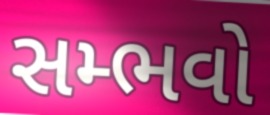
સમ્ભવો